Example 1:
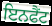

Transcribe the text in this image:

ਇਨਫੈਂਟ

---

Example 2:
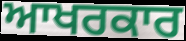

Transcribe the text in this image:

ਆਖਰਕਾਰ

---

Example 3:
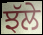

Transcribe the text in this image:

ਝੱਲੇ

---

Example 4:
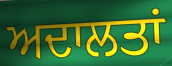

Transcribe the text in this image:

ਅਦਾਲਤਾਂ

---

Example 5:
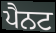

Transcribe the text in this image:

ਪੈਨਟ